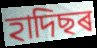
হাদিছৰ